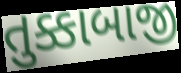
તુક્કાબાજી